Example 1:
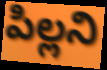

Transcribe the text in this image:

పిల్లని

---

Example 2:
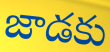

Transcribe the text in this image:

జాడకు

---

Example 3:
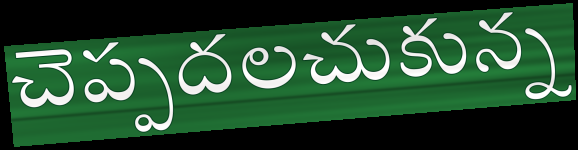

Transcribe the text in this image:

చెప్పదలచుకున్న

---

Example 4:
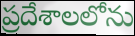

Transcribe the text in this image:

ప్రదేశాలలోను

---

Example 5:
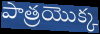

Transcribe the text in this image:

పాత్రయొక్క